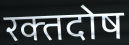
रक्‍तदोष